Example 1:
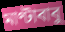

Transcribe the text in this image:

মাণ্টাবাবু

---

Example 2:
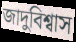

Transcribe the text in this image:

জাদুবিশ্বাস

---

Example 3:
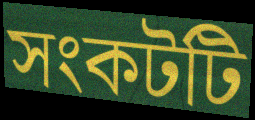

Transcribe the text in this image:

সংকটটি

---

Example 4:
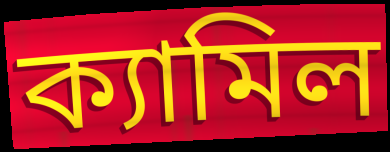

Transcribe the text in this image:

ক্যামিল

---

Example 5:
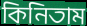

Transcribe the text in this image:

কিনিতাম